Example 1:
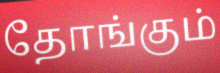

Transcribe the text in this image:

தோங்கும்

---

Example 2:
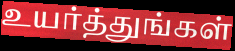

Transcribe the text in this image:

உயர்த்துங்கள்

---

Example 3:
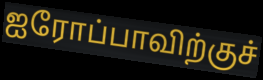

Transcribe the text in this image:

ஐரோப்பாவிற்குச்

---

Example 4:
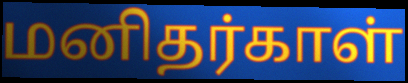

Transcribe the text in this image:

மனிதர்காள்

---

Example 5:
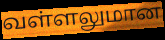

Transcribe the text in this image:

வள்ளலுமான